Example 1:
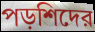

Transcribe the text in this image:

পড়শিদের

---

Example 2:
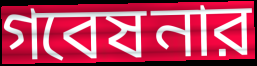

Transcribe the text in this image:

গবেষনার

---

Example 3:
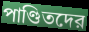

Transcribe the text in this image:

পাণ্ডিতদের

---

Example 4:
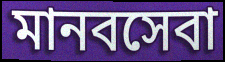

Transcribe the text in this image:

মানবসেবা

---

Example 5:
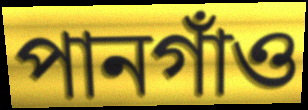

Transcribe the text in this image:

পানগাঁও